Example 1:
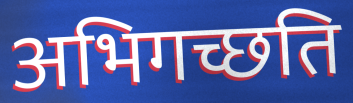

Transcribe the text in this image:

अभिगच्छति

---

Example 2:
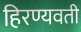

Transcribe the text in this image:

हिरण्यवती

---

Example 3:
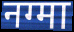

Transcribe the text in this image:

नग्मा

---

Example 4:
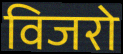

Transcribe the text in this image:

विजरो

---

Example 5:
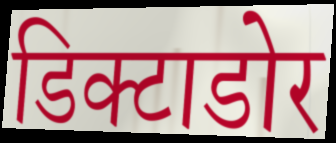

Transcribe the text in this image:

डिक्टाडोर